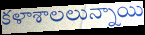
కళాశాలలున్నాయి